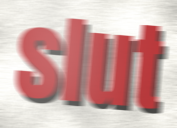
slut